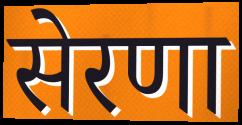
सेरणा